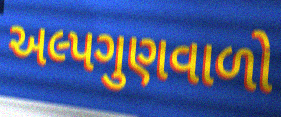
અલ્પગુણવાળો